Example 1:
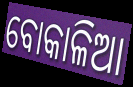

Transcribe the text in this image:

ବୋକାଳିଆ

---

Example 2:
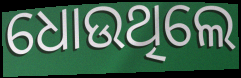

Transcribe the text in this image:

ଧୋଉଥିଲେ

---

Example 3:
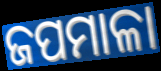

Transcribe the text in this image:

ଜପମାଳା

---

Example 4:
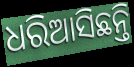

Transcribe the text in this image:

ଧରିଆସିଛନ୍ତି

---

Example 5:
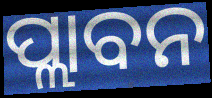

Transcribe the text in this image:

ପ୍ଲାବନ